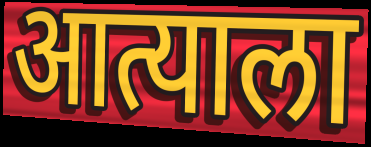
आत्याला